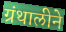
ग्रंथालीने